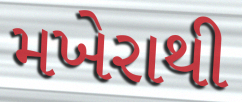
મખેરાથી